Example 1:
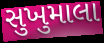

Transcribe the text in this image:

સુખુમાલા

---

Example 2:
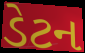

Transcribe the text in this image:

ડેટન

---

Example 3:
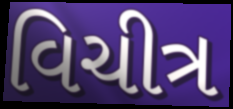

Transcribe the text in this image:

વિચીત્ર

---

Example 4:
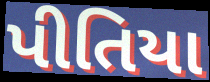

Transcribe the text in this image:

પીતિયા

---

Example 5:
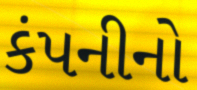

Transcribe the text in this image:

કંપનીનો